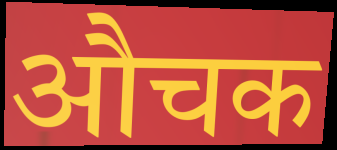
औचक